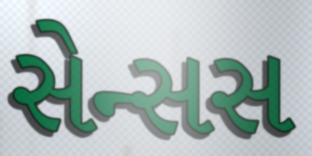
સેન્સસ